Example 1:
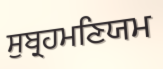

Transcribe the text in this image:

ਸੁਬ੍ਰਹਮਣਿਯਮ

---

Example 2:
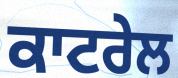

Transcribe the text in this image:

ਕਾਟਰੇਲ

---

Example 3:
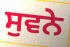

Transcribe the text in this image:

ਸੁਵਨੇ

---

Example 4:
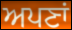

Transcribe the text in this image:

ਅਪਣਾਂ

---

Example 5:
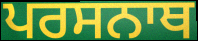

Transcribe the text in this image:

ਪਰਸਨਾਥ